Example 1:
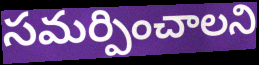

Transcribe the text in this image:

సమర్పించాలని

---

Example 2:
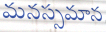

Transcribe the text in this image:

మనస్సమాన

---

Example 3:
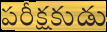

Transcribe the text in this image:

పరీక్షకుడు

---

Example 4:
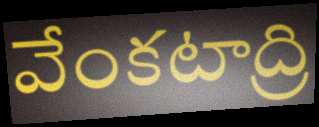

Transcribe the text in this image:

వేంకటాద్రి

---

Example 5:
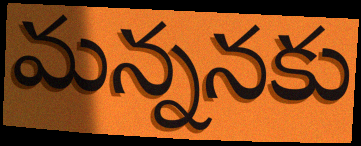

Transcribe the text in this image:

మన్ననకు